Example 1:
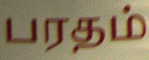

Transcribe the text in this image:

பரதம்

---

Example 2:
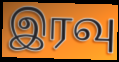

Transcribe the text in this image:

இரவு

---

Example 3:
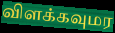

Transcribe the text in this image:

விளக்கவுமர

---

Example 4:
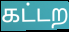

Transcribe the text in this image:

கட்டற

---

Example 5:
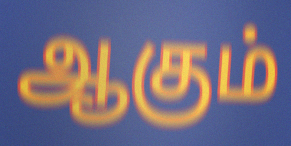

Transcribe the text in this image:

ஆகும்